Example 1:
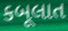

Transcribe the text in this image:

કબૂલાત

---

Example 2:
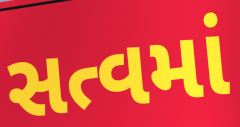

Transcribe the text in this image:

સત્વમાં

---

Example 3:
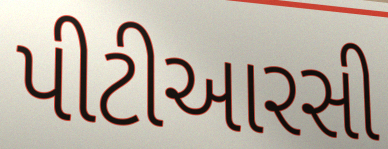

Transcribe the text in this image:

પીટીઆરસી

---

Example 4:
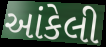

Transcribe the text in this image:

આંકેલી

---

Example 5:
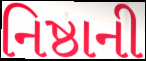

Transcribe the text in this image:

નિષ્ઠાની